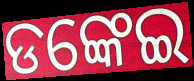
ଡଙ୍କେଇ